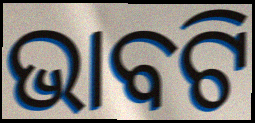
ଭାବଟି